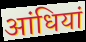
आंधियां